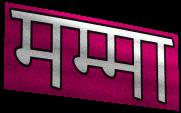
मम्मा